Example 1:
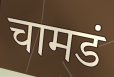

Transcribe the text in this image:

चामडं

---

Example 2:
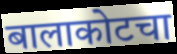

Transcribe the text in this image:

बालाकोटचा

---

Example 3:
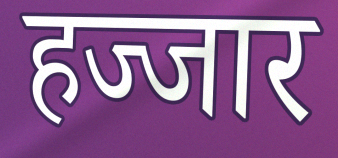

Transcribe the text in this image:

हज्जार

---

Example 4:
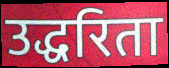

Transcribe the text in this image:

उद्धरिता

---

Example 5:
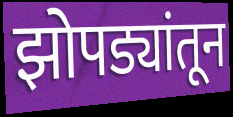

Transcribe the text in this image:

झोपड्यांतून